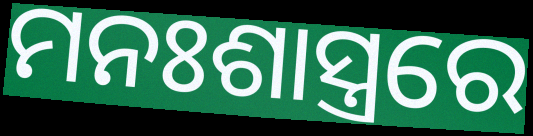
ମନଃଶାସ୍ତ୍ରରେ